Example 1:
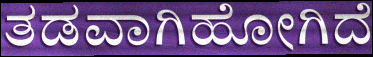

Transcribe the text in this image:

ತಡವಾಗಿಹೋಗಿದೆ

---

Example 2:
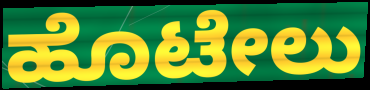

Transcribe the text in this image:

ಹೊಟೇಲು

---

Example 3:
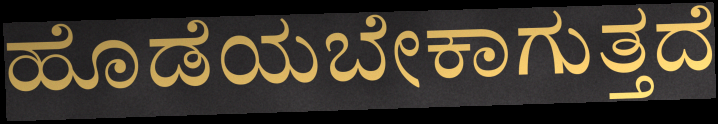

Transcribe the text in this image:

ಹೊಡೆಯಬೇಕಾಗುತ್ತದೆ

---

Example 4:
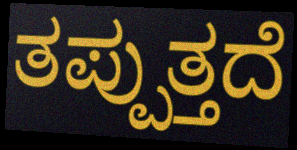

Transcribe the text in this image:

ತಪ್ಪುತ್ತದೆ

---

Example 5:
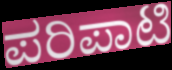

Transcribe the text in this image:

ಪರಿಪಾಟಿ